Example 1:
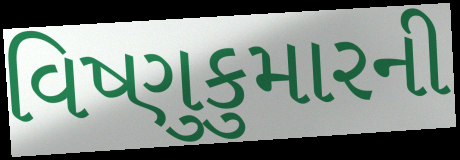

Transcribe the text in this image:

વિષ્ણુકુમારની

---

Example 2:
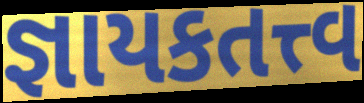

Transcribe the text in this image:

જ્ઞાયકતત્ત્વ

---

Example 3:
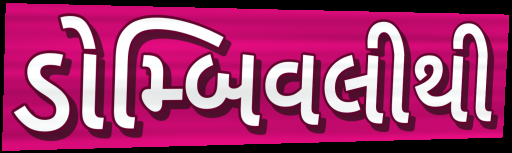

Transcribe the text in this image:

ડોમ્બિવલીથી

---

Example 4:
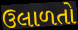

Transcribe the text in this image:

ઉલાળતો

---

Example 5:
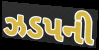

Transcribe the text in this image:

ઝડપની